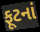
ફૂટનાં